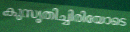
കുസൃതിച്ചിരിയോടെ